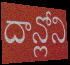
దాన్లోని